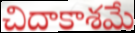
చిదాకాశమే